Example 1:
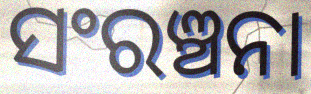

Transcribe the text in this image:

ସଂରଞ୍ଚନା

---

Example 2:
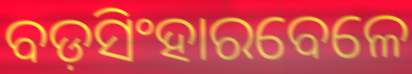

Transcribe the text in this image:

ବଡ଼ସିଂହାରବେଳେ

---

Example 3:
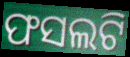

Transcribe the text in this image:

ଫସଲଟି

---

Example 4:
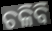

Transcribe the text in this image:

ଚଳିବି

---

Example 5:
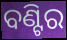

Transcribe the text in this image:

ବଣ୍ଟିର